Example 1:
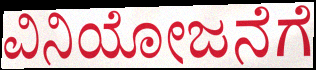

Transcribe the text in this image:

ವಿನಿಯೋಜನೆಗೆ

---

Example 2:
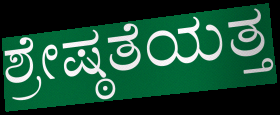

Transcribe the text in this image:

ಶ್ರೇಷ್ಠತೆಯತ್ತ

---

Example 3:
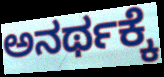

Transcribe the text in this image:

ಅನರ್ಥಕ್ಕೆ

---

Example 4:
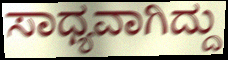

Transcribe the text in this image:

ಸಾಧ್ಯವಾಗಿದ್ದು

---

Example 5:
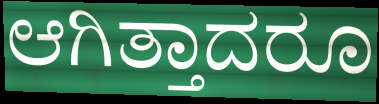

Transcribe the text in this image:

ಆಗಿತ್ತಾದರೂ